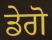
ਡੇਗੋ